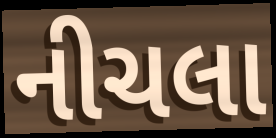
નીચલા